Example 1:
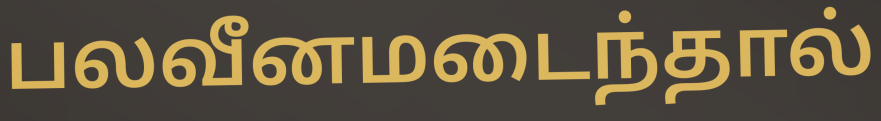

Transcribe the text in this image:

பலவீனமடைந்தால்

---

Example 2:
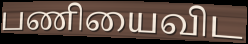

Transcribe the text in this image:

பணியைவிட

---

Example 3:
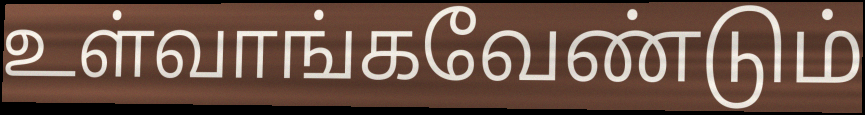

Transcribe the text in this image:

உள்வாங்கவேண்டும்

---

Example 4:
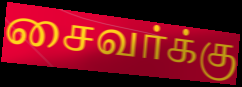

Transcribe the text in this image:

சைவர்க்கு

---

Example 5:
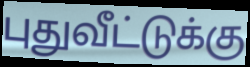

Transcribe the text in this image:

புதுவீட்டுக்கு